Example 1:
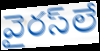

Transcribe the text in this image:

వైరస్‌లే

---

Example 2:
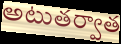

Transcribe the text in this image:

అటుతర్వాత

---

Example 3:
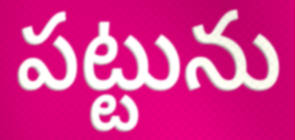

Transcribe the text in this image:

పట్టును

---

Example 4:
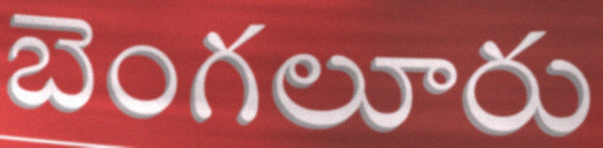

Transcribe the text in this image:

బెంగలూరు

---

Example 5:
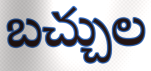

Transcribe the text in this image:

బచ్చుల